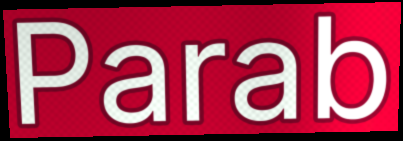
Parab